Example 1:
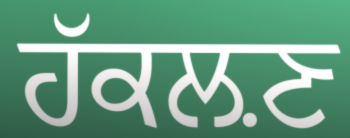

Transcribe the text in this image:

ਹੱਕਲ਼ਣ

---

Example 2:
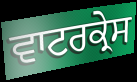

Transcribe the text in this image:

ਵਾਟਰਕ੍ਰੇਸ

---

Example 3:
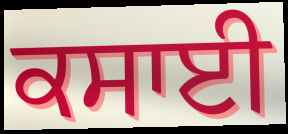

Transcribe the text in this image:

ਕਸਾਈ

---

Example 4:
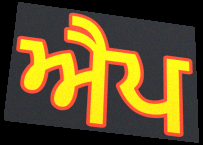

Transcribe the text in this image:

ਐਪ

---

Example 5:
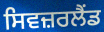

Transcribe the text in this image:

ਸਿਵਜ਼ਰਲੈਂਡ